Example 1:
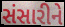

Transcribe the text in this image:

સંસારીને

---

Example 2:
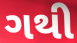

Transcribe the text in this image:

ગથી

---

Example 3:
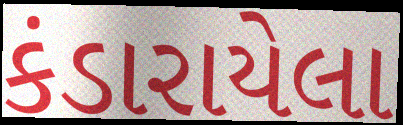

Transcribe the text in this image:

કંડારાયેલા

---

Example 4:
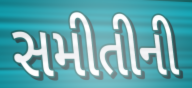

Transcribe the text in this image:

સમીતીની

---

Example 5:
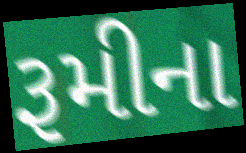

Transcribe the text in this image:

રૂમીના